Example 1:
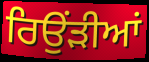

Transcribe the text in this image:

ਰਿਉਂੜੀਆਂ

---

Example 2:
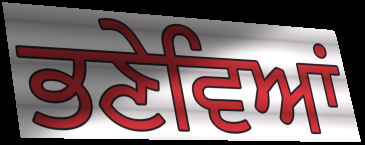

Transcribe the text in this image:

ਭਣੇਵਿਆਂ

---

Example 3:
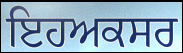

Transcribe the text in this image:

ਇਹਅਕਸਰ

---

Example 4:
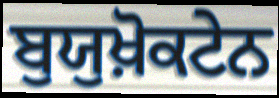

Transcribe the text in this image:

ਬੁਯੁਖ਼ੋਕਟੇਨ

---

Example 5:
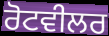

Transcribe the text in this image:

ਰੋਟਵੀਲਰ